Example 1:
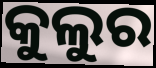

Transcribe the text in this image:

କୁଲୁର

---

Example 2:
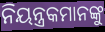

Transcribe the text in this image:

ନିୟନ୍ତ୍ରକମାନଙ୍କୁ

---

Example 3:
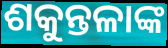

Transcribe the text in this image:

ଶକୁନ୍ତଳାଙ୍କ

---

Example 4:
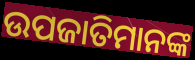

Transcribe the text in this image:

ଉପଜାତିମାନଙ୍କ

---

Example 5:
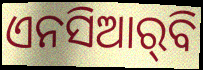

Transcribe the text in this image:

ଏନସିଆର୍‌ବି